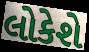
લોકેશે